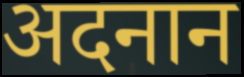
अदनान